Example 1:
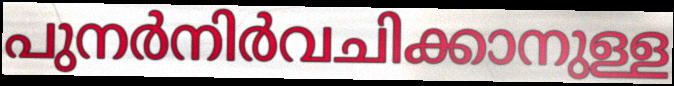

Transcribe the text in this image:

പുനർനിർവചിക്കാനുള്ള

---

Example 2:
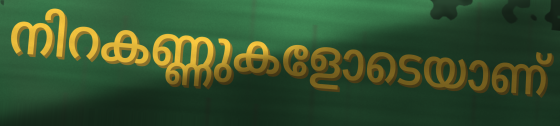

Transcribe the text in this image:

നിറകണ്ണുകളോടെയാണ്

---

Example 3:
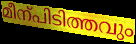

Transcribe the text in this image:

മീന്പിടിത്തവും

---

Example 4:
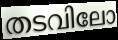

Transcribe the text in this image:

തടവിലോ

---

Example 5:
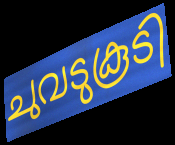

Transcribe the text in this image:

ചുവടുകൂടി